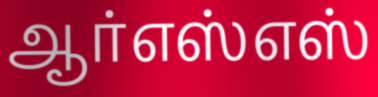
ஆர்எஸ்எஸ்